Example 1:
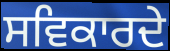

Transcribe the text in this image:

ਸਵਿਕਾਰਦੇ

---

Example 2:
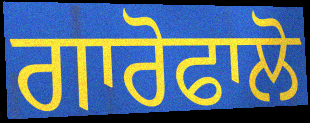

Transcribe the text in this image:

ਗਾਰੋਫਾਲੋ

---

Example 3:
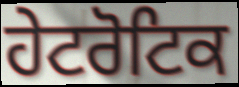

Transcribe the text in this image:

ਹੇਟਰੋਟਿਕ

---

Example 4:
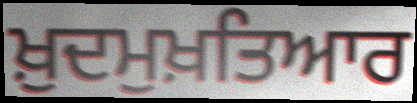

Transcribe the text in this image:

ਖ਼ੁਦਮੁਖ਼ਤਿਆਰ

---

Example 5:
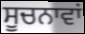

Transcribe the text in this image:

ਸੂਚਨਾਵਾਂ